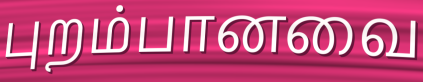
புறம்பானவை